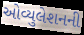
ઓવ્યુલેશનની